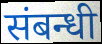
संबन्धी